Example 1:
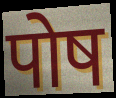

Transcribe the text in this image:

पोष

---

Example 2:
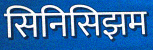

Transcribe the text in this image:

सिनिसिझम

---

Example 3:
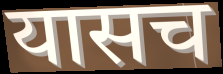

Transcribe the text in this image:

यासच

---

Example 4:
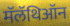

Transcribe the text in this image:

मॅलॅथिऑन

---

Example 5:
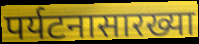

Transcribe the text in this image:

पर्यटनासारख्या